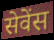
सेवेंस